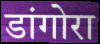
डांगोरा